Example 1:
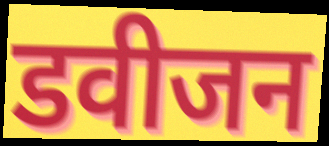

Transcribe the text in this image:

डवीजन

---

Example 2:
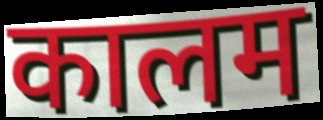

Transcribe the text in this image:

कालम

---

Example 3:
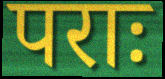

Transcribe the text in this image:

पराः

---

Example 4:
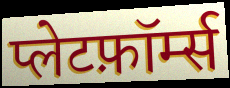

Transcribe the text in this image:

प्लेटफ़ॉर्म्स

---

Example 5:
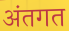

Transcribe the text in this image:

अंतगत